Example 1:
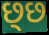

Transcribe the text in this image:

છ્છ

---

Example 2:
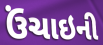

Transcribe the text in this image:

ઉંચાઇની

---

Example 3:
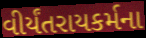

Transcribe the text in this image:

વીર્યંતરાયકર્મના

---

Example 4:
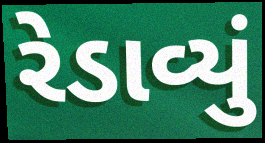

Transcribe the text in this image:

રેડાવ્યું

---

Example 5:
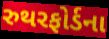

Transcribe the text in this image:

રુથરફોર્ડના